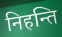
निहन्ति